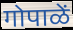
गोपाळें